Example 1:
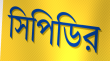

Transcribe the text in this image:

সিপিডির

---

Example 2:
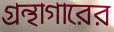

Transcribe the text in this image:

গ্রন্থাগারের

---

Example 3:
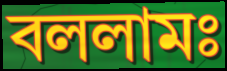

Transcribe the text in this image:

বললামঃ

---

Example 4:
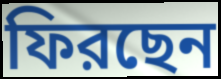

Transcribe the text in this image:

ফিরছেন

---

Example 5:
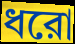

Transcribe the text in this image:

ধরো